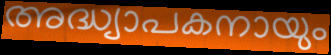
അദ്ധ്യാപകനായും